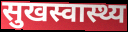
सुखस्वास्थ्य